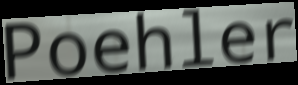
Poehler